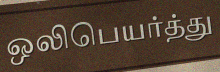
ஒலிபெயர்த்து